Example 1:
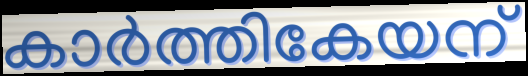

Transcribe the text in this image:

കാർത്തികേയന്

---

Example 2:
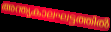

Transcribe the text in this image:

അന്ത്യകാലഘട്ടത്തിൽ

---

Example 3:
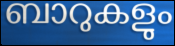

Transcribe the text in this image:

ബാറുകളും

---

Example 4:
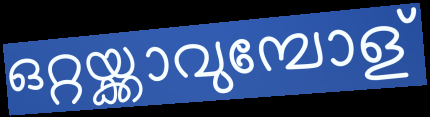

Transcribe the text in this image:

ഒറ്റയ്ക്കാവുമ്പോള്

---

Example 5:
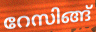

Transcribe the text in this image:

റേസിങ്ങ്